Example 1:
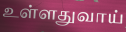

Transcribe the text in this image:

உள்ளதுவாய்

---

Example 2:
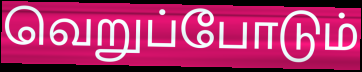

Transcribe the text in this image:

வெறுப்போடும்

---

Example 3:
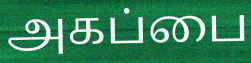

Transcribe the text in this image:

அகப்பை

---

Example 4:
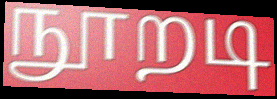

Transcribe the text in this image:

நூறடி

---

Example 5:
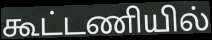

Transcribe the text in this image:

கூட்டணியில்